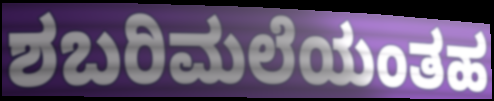
ಶಬರಿಮಲೆಯಂತಹ